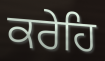
ਕਰੇਹਿ